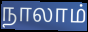
நாலாம்